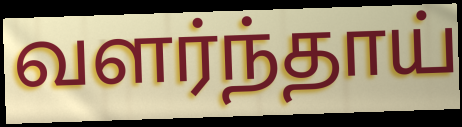
வளர்ந்தாய்